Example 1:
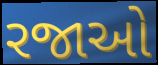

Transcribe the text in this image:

રજાઓ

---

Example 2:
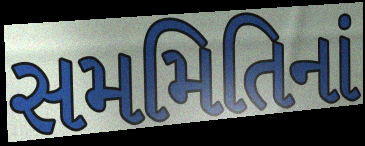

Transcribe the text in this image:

સમમિતિનાં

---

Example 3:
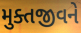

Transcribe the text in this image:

મુક્તજીવને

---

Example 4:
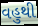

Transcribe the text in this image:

વહુથી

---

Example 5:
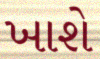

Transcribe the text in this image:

ખાશે